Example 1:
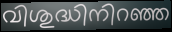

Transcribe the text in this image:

വിശുദ്ധിനിറഞ്ഞ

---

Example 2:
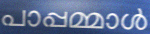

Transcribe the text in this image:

പാപ്പമ്മാൾ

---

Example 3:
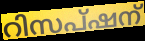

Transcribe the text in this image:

റിസപ്ഷന്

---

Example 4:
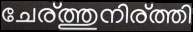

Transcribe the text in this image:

ചേര്ത്തുനിര്ത്തി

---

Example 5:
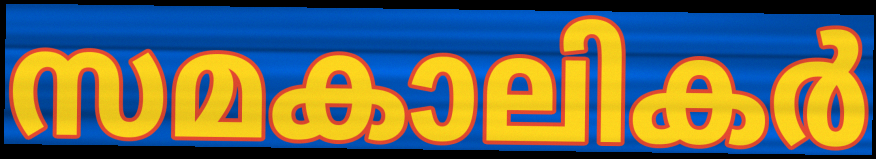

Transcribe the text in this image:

സമകാലികർ